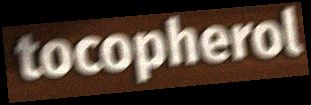
tocopherol